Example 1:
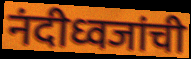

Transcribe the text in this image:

नंदीध्वजांची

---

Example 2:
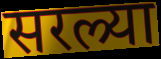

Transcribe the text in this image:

सरल्या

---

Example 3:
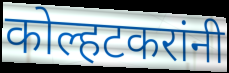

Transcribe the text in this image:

कोल्हटकरांनी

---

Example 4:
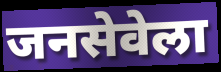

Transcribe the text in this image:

जनसेवेला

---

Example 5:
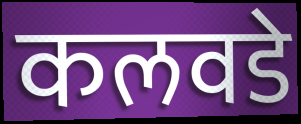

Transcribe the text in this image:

कलवडे